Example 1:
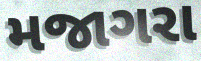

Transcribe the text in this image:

મજાગરા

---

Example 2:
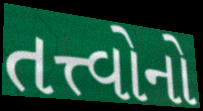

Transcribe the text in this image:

તત્ત્વોનો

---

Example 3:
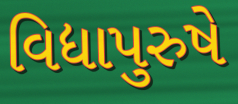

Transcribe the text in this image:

વિદ્યાપુરુષે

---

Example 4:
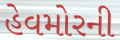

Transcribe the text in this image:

હેવમોરની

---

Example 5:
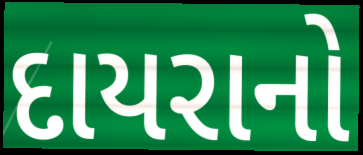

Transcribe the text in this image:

દાયરાનો